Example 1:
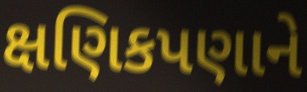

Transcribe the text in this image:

ક્ષણિકપણાને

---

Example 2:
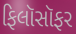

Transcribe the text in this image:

ફિલૉસૉફર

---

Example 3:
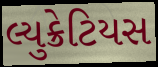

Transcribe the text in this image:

લ્યુક્રેટિયસ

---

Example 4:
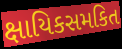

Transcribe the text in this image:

ક્ષાયિકસમકિત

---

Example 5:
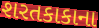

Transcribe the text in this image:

શરતકાકાના